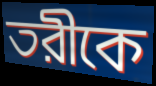
তরীকে